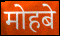
मोहबे